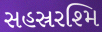
સહસ્રરશ્મિ